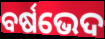
ବର୍ଷଭେଦ